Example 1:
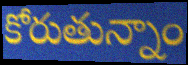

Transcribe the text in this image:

కోరుతున్నాం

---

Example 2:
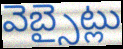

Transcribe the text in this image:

వెబ్సైట్లు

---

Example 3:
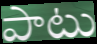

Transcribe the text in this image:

పాటు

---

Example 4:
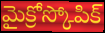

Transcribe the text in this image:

మైక్రోస్కోపిక్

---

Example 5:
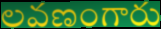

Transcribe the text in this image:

లవణంగారు